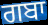
ਗਬਾ